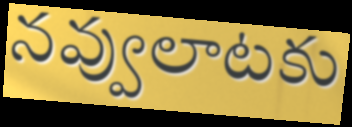
నవ్వులాటకు